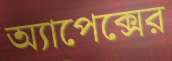
অ্যাপেক্সের